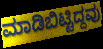
ಮಾಡಿಬಿಟ್ಟಿದ್ದವು